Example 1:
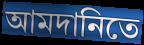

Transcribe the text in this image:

আমদানিতে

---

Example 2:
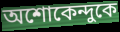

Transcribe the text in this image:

অশোকেন্দুকে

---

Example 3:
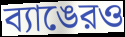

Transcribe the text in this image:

ব্যাঙেরও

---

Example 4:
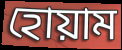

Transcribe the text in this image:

হোয়াম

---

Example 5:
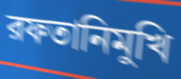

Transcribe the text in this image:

রফতানিমুখি